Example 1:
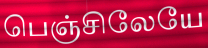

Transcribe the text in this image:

பெஞ்சிலேயே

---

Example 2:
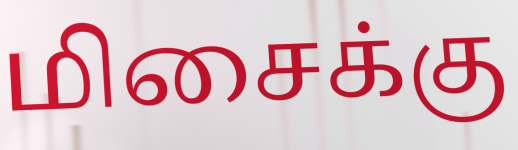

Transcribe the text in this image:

மிசைக்கு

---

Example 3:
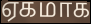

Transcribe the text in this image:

ஏகமாக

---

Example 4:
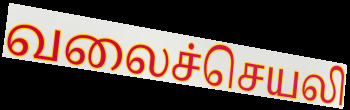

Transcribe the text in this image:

வலைச்செயலி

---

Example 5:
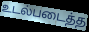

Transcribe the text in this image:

உடல்படைத்த